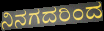
ನಿನಗದರಿಂದ